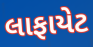
લાફાયેટ